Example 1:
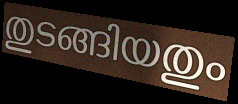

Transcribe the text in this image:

തുടങ്ങിയതും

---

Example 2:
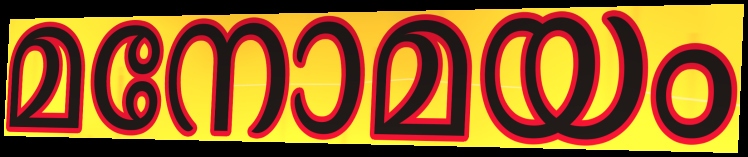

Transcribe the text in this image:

മനോമയം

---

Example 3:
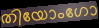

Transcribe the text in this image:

തിയോംഗോ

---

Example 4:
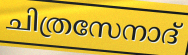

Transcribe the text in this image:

ചിത്രസേനാദ്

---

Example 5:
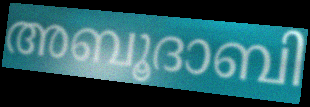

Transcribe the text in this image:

അബൂദാബി